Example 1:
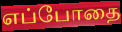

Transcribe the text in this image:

எப்போதை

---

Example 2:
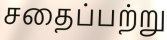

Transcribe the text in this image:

சதைப்பற்று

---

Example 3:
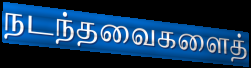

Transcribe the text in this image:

நடந்தவைகளைத்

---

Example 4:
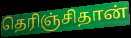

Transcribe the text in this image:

தெரிஞ்சிதான்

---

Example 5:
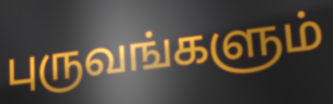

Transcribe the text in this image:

புருவங்களும்